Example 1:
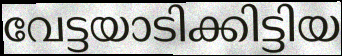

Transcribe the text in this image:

വേട്ടയാടിക്കിട്ടിയ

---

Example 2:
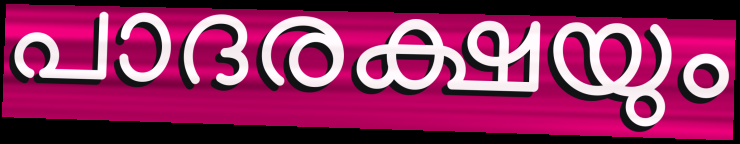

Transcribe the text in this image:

പാദരക്ഷയും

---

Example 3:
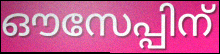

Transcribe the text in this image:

ഔസേപ്പിന്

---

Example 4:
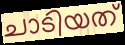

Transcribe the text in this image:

ചാടിയത്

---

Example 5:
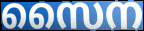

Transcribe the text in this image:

സൈന